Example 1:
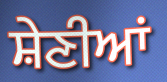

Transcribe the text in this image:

ਸ਼ੇਣੀਆਂ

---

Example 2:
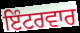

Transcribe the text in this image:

ਇੰਟਰਵਾਰ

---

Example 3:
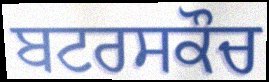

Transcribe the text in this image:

ਬਟਰਸਕੌਚ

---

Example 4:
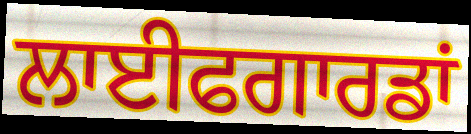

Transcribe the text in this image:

ਲਾਈਫਗਾਰਡਾਂ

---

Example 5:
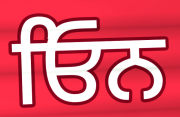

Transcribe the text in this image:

ਓਿਨ